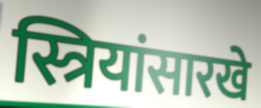
स्त्रियांसारखे